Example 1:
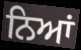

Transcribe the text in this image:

ਨਿਆਂ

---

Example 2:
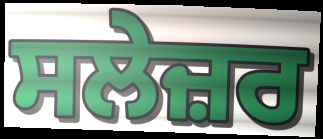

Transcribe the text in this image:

ਸਲੇਜ਼ਰ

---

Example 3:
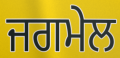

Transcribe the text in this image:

ਜਗਮੇਲ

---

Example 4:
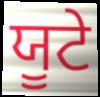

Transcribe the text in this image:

ਯੂਟੇ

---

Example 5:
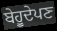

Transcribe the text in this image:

ਬੇਹੂਦੇਪਣ